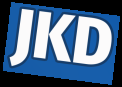
JKD